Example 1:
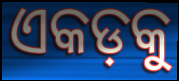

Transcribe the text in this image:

ଏକଡ଼କୁ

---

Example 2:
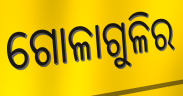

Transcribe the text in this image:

ଗୋଳାଗୁଳିର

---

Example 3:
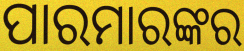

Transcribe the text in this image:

ପାରମାରଙ୍କର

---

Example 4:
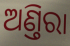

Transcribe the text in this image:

ଅଣ୍ତିରା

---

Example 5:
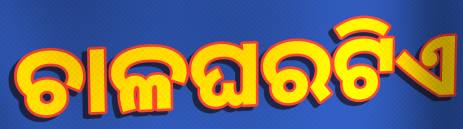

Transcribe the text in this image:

ଚାଳଘରଟିଏ